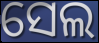
ସେଲ